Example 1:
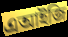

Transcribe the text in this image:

এআইজি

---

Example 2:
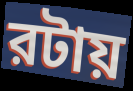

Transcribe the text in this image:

রটায়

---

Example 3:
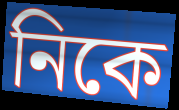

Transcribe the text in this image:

নিকে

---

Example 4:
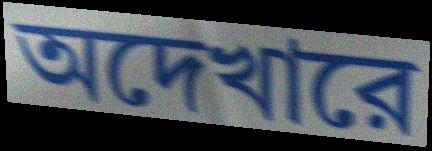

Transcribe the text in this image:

অদেখারে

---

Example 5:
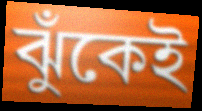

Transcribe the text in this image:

ঝুঁকেই